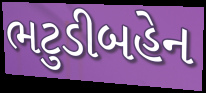
ભટુડીબહેન